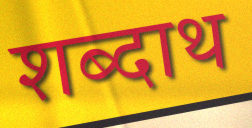
शब्दाथ